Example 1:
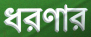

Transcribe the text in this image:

ধরণার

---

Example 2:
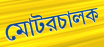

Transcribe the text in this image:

মোটরচালক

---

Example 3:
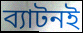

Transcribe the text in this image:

ব্যাটনই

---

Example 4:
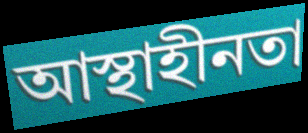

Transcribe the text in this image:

আস্থাহীনতা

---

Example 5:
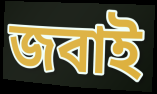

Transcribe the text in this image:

জবাই